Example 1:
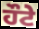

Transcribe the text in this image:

ਹੌਟੇ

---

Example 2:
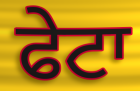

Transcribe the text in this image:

ਫੇਟਾ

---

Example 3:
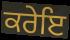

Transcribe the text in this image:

ਕਰੇਇ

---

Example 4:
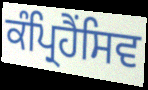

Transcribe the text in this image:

ਕੰਪ੍ਰਿਹੈਂਸਿਵ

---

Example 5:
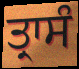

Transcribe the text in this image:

ਤ੍ਰਾਸੰ